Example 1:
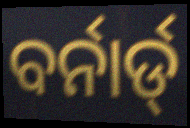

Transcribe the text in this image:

ବର୍ନାର୍ଡ୍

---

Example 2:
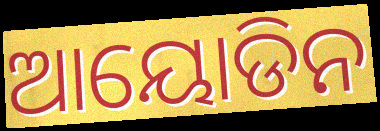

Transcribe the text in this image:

ଆୟୋଡିନ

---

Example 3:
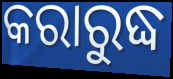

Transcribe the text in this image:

କରାରୁଦ୍ଧ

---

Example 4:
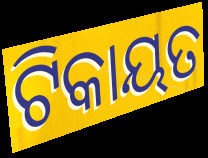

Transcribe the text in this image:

ଟିକାୟତ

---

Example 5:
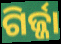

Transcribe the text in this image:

ଗିର୍ଜ୍ଜା